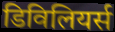
डिविलियर्स